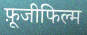
फ़ूजीफिल्म